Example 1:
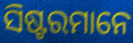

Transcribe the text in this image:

ସିଷ୍ଟରମାନେ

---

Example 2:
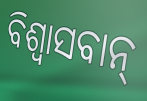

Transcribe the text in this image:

ବିଶ୍ଵାସବାନ୍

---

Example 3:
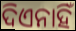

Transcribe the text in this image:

ଦିଏନାହିଁ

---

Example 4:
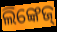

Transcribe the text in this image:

ଲିଙ୍କେଜ୍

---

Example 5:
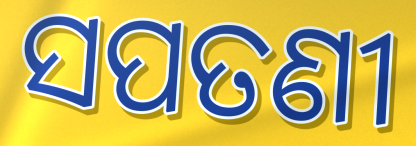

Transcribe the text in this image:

ସପତଣୀ